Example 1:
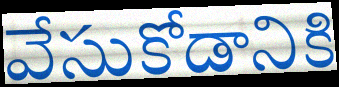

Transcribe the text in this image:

వేసుకోడానికి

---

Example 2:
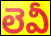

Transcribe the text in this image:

లెవీ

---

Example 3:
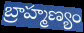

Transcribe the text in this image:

బ్రాహ్మణ్యం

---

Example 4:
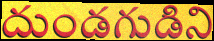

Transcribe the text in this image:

దుండగుడిని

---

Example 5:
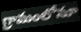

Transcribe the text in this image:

గ్రామంలోనూ